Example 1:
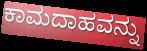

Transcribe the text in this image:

ಕಾಮದಾಹವನ್ನು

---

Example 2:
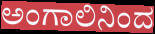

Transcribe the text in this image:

ಅಂಗಾಲಿನಿಂದ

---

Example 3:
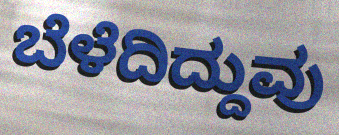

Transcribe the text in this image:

ಬೆಳೆದಿದ್ದುವು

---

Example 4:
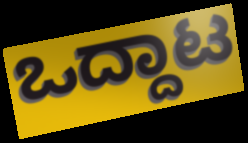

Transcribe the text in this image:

ಒದ್ದಾಟ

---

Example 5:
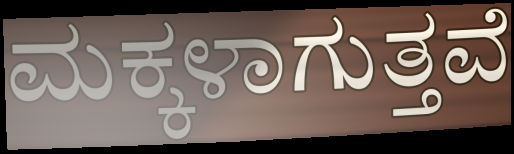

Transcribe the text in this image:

ಮಕ್ಕಳಾಗುತ್ತವೆ